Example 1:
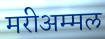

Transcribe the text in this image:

मरीअम्मल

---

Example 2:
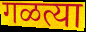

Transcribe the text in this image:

गळत्या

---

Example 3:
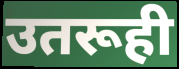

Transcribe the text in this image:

उतरूही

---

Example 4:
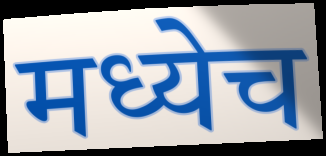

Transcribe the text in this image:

मध्येच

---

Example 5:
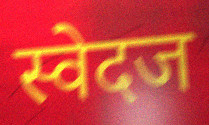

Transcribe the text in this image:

स्वेदज